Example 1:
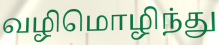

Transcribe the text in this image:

வழிமொழிந்து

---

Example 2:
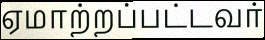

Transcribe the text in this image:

ஏமாற்றப்பட்டவர்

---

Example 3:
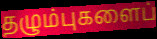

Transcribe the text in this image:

தழும்புகளைப்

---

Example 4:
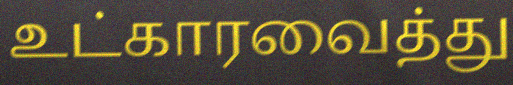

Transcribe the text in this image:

உட்காரவைத்து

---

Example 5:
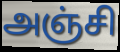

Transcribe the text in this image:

அஞ்சி